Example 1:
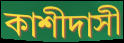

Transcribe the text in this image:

কাশীদাসী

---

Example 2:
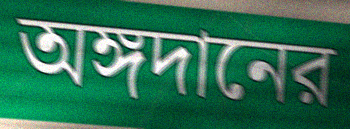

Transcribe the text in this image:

অঙ্গদানের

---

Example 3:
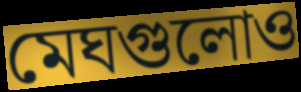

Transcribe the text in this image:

মেঘগুলোও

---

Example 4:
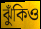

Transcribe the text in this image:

ঝুঁকিও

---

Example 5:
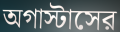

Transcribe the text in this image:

অগাস্টাসের